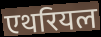
एथरियल